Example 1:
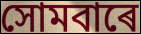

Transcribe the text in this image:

সোমবাৰে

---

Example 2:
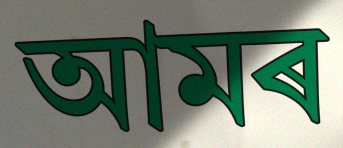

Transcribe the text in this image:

আমৰ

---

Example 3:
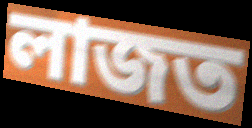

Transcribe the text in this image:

লাজত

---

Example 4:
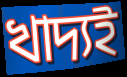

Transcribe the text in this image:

খাদ্যই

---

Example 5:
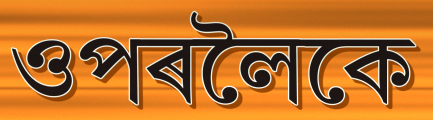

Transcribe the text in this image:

ওপৰলৈকে